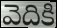
వెదికి